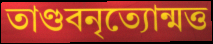
তাণ্ডবনৃত্যোন্মত্ত